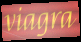
viagra